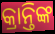
କ୍ରାନ୍ତିଙ୍କ